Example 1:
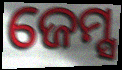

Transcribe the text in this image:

ଜେମ୍ସ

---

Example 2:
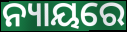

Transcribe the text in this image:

ନ୍ୟାୟରେ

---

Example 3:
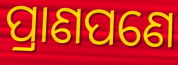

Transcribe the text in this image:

ପ୍ରାଣପଣେ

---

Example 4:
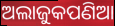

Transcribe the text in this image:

ଅଲାଜୁକପଣିଆ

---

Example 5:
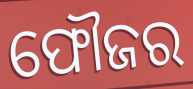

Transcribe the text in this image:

ଫୌଜର